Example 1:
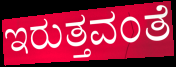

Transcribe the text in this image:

ಇರುತ್ತವಂತೆ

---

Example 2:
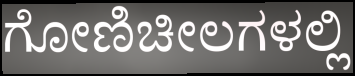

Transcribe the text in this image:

ಗೋಣಿಚೀಲಗಳಲ್ಲಿ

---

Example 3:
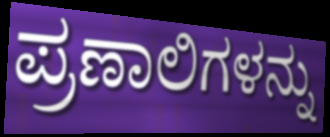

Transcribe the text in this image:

ಪ್ರಣಾಲಿಗಳನ್ನು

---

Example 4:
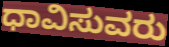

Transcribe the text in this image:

ಧಾವಿಸುವರು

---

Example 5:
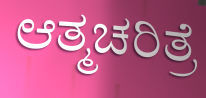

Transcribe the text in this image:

ಆತ್ಮಚರಿತ್ರೆ